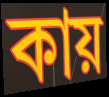
কায়